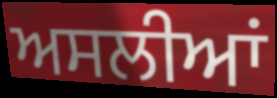
ਅਸਲੀਆਂ